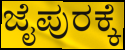
ಜೈಪುರಕ್ಕೆ